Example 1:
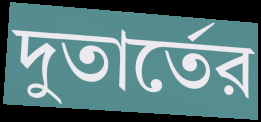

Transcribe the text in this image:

দুতার্তের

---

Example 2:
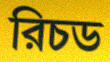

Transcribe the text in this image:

রিচড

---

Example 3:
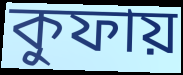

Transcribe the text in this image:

কুফায়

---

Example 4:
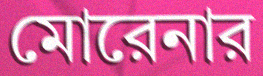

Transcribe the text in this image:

মোরেনার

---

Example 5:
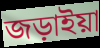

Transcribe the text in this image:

জড়াইয়া